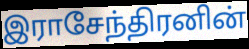
இராசேந்திரனின்